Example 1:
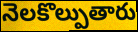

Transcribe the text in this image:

నెలకొల్పుతారు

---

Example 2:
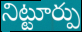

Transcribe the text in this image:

నిట్టూర్పు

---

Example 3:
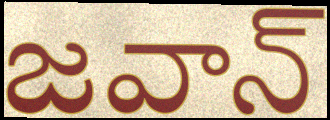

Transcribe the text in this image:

జవాన్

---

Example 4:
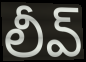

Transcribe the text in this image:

లీవ్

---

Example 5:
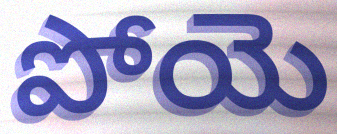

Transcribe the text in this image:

పోయె